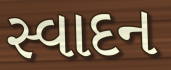
સ્વાદન